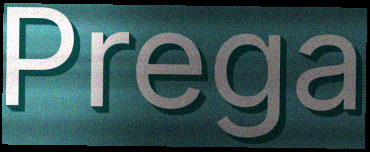
Prega